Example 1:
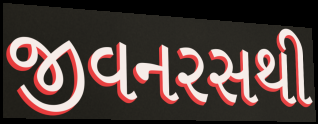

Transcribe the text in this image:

જીવનરસથી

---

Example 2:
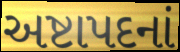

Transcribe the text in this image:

અષ્ટાપદનાં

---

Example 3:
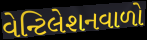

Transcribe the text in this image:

વેન્ટિલેશનવાળો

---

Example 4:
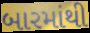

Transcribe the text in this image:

બારમાંથી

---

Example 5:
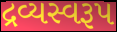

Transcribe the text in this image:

દ્રવ્યસ્વરૂપ